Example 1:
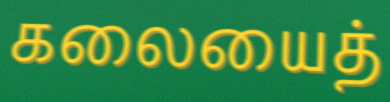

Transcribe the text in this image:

கலையைத்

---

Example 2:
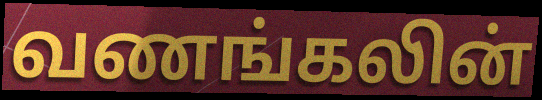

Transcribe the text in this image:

வணங்கலின்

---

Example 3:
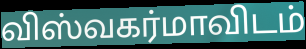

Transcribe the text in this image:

விஸ்வகர்மாவிடம்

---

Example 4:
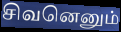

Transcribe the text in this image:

சிவனெனும்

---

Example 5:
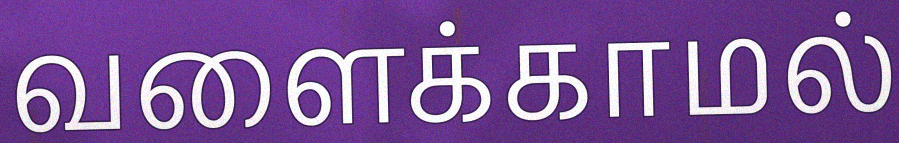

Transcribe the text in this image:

வளைக்காமல்